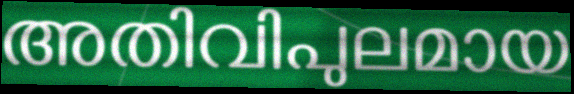
അതിവിപുലമായ